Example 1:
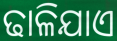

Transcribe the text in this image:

ଢାଳିଯାଏ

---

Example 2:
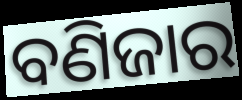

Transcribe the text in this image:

ବଣିଜାର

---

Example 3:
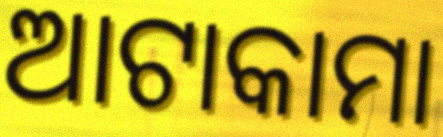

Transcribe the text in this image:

ଆଟାକାମା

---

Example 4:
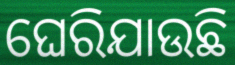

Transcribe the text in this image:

ଘେରିଯାଉଛି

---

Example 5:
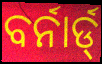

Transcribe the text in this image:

ବର୍ନାର୍ଡ୍